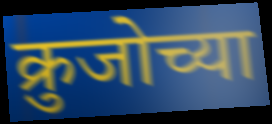
क्रुजोच्या